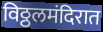
विठ्ठलमंदिरात